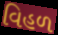
વિહળ